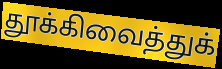
தூக்கிவைத்துக்